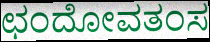
ಛಂದೋವತಂಸ